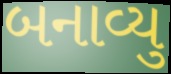
બનાવ્યુ